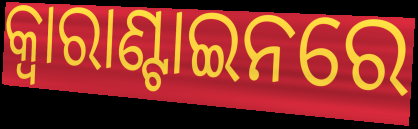
କ୍ବାରାଣ୍ଟାଇନରେ